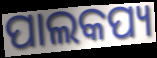
ପାଲକପ୍ୟ